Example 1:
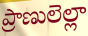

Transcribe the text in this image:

ప్రాణులెల్లా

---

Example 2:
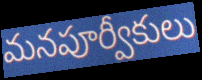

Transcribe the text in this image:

మనపూర్వీకులు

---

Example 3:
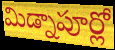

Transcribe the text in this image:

మిడ్నాపూర్లో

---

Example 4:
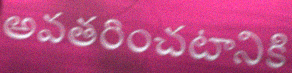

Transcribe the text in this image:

అవతరించటానికి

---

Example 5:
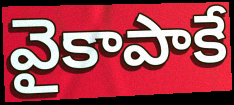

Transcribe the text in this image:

వైకాపాకే